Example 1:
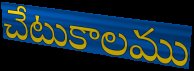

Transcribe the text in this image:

చేటుకాలము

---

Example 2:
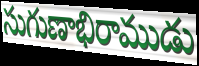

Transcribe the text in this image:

సుగుణాభిరాముడు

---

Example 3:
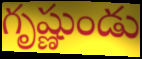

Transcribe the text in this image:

గృష్ణుండు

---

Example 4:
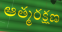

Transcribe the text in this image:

ఆత్మరక్షణ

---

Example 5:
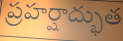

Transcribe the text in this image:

ప్రహర్షాద్భుత